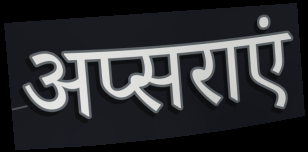
अप्सराएं